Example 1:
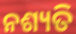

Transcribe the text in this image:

ନଶ୍ୟତି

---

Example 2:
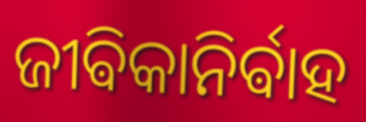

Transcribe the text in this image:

ଜୀଵିକାନିର୍ଵାହ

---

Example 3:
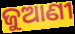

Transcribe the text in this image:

ଜୁଆଣୀ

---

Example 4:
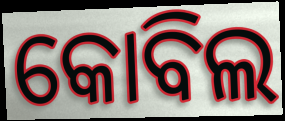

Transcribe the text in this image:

କୋବିଲ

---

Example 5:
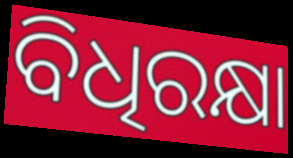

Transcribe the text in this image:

ବିଧିରକ୍ଷା